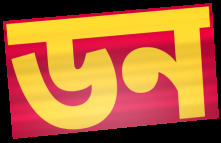
ডন